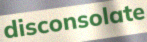
disconsolate